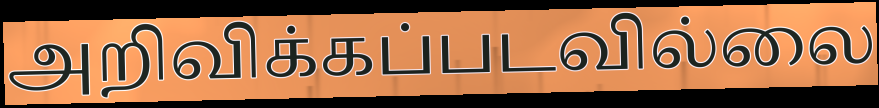
அறிவிக்கப்படவில்லை